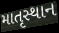
માતૃસ્થાન